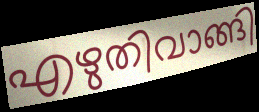
എഴുതിവാങ്ങി